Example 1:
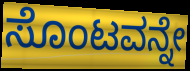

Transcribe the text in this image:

ಸೊಂಟವನ್ನೇ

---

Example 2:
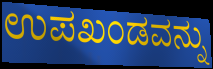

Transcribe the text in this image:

ಉಪಖಂಡವನ್ನು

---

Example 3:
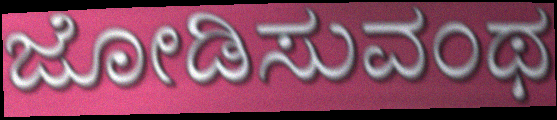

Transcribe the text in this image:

ಜೋಡಿಸುವಂಥ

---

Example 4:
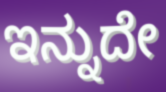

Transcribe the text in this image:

ಇನ್ನುದೇ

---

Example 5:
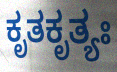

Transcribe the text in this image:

ಕೃತಕೃತ್ಯಃ